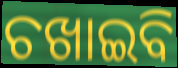
ଚଖାଇବି